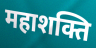
महाशक्ति